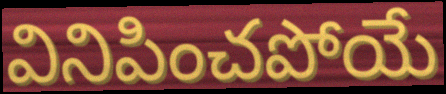
వినిపించపోయే